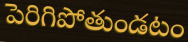
పెరిగిపోతుండటం